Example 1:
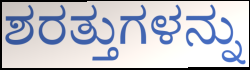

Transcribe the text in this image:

ಶರತ್ತುಗಳನ್ನು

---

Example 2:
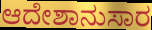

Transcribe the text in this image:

ಆದೇಶಾನುಸಾರ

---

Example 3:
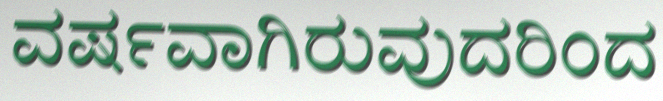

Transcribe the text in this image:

ವರ್ಷವಾಗಿರುವುದರಿಂದ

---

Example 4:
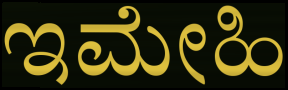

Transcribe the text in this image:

ಇಮೇಹಿ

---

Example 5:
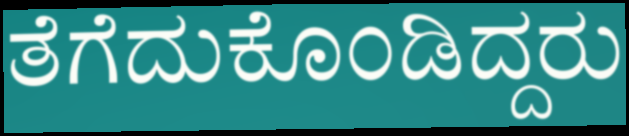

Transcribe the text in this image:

ತೆಗೆದುಕೊಂಡಿದ್ದರು